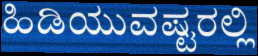
ಹಿಡಿಯುವಷ್ಟರಲ್ಲಿ